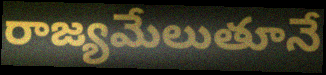
రాజ్యమేలుతూనే